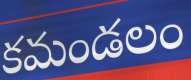
కమండలం